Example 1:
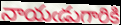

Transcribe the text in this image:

నాయఁడుగారికి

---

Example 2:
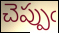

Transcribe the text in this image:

చెప్పుఁ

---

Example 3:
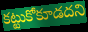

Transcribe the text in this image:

కట్టుకోకూడదని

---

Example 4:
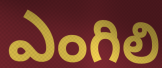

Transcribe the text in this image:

ఎంగిలి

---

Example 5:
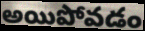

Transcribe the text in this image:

అయిపోవడం